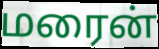
மரைன்